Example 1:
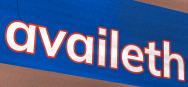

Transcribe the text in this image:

availeth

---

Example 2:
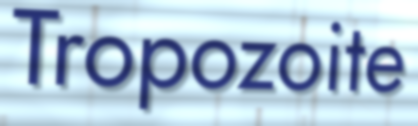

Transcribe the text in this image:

Tropozoite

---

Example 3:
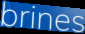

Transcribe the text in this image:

brines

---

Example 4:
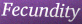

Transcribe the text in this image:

Fecundity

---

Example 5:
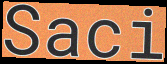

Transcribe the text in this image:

Saci